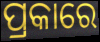
ପ୍ରକାରେ